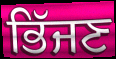
ਭਿੱਜਣ